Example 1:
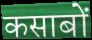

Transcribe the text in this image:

कसाबों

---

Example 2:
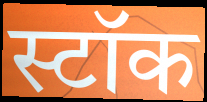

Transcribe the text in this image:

स्‍टॉक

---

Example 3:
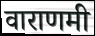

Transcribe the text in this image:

वाराणमी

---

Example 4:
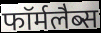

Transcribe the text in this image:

फॉर्मलैब्स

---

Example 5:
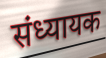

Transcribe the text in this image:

संध्यायक